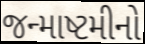
જન્માષ્ટમીનો